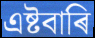
এষ্টবাৰি